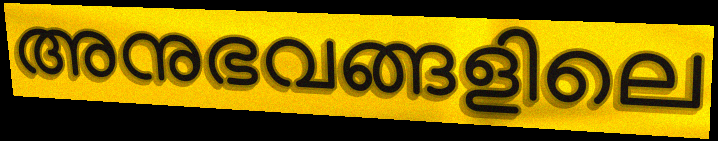
അനുഭവങ്ങളിലെ